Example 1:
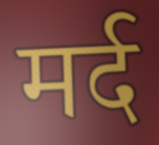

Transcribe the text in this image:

मर्द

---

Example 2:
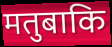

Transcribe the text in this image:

मतुबाकि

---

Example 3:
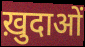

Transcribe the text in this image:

ख़ुदाओं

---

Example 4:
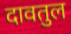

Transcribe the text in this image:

दावतुल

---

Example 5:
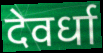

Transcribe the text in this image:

देवर्धा